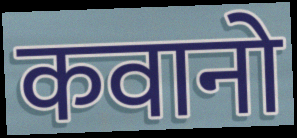
कवानो